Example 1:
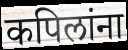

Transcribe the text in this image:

कपिलांना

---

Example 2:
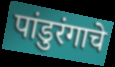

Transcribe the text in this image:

पांडुरंगाचे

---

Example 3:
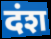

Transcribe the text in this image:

दंश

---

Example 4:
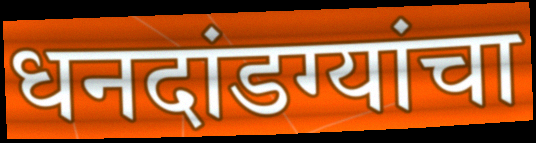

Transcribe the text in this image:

धनदांडग्यांचा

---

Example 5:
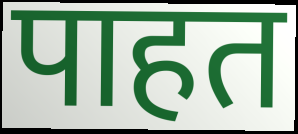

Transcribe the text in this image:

पाहत